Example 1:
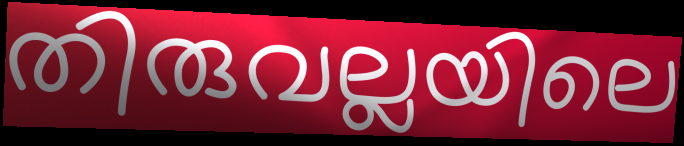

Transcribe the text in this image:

തിരുവല്ലയിലെ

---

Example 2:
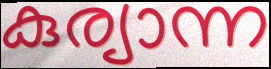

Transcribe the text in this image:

കുര്യാന്ന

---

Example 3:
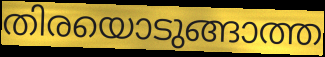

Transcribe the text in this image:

തിരയൊടുങ്ങാത്ത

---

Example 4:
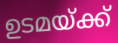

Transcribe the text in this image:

ഉടമയ്ക്ക്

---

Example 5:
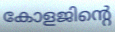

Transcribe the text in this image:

കോളജിന്റെ